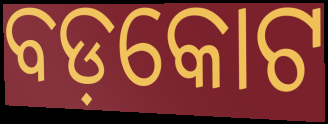
ବଡ଼କୋଟ